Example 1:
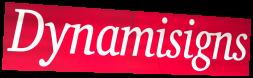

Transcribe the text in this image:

Dynamisigns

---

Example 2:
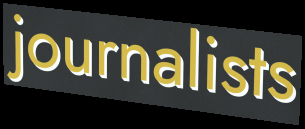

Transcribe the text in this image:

journalists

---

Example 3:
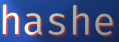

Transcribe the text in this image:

hashe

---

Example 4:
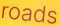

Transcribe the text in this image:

roads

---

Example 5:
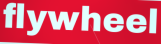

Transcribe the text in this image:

flywheel